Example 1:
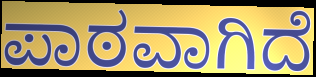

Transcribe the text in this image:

ಪಾಠವಾಗಿದೆ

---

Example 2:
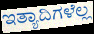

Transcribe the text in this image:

ಇತ್ಯಾದಿಗಳೆಲ್ಲ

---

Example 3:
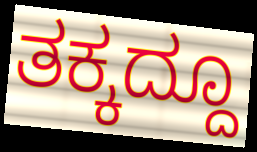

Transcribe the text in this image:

ತಕ್ಕದ್ದೂ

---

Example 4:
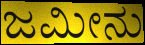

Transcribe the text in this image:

ಜಮೀನು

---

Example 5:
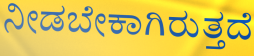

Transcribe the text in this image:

ನೀಡಬೇಕಾಗಿರುತ್ತದೆ